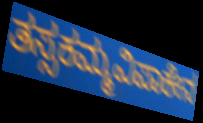
ತಸ್ಸಕಮ್ಮವಿಪಾಕೇನ